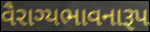
વૈરાગ્યભાવનારૂપ